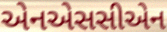
એનએસસીએન